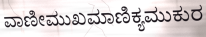
ವಾಣೀಮುಖಮಾಣಿಕ್ಯಮುಕುರ